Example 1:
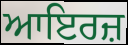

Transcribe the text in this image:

ਆਇਰਜ਼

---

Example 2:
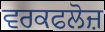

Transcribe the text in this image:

ਵਰਕਫਲੋਜ਼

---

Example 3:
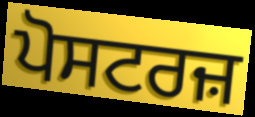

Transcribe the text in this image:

ਪੋਸਟਰਜ਼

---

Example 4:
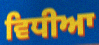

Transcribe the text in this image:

ਵਿਧੀਆ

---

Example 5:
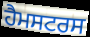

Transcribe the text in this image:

ਹੈਮਸਟਰਸ